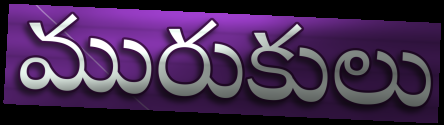
మురుకులు